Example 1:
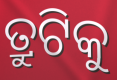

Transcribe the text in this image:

ତ୍ରୁଟିକୁ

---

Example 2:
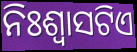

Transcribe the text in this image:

ନିଃଶ୍ୱାସଟିଏ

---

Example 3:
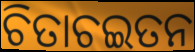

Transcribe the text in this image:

ଚିତାଚଇତନ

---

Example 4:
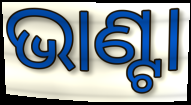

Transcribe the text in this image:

ଭାଣ୍ଟା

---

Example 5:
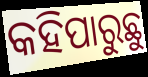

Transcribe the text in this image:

କହିପାରୁଛୁ